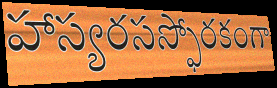
హాస్యరసస్ఫోరకంగా